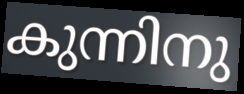
കുന്നിനു